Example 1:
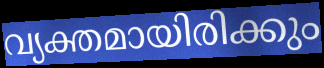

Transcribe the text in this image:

വ്യക്തമായിരിക്കും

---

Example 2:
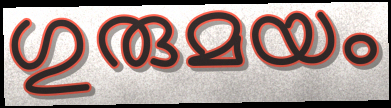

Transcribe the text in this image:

ഗുരുമയം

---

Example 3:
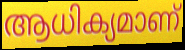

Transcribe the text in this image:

ആധിക്യമാണ്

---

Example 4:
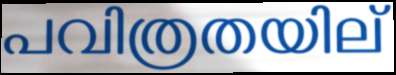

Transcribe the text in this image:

പവിത്രതയില്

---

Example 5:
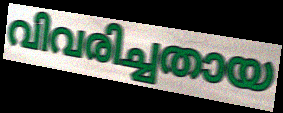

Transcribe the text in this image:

വിവരിച്ചതായ